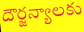
దౌర్జన్యాలకు